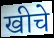
खीचे